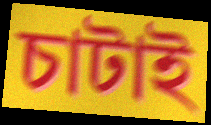
চাটাই